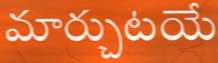
మార్చుటయే